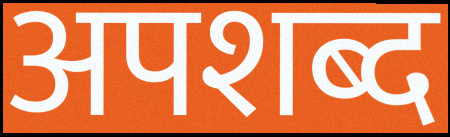
अपशब्‍द